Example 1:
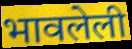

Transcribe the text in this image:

भावलेली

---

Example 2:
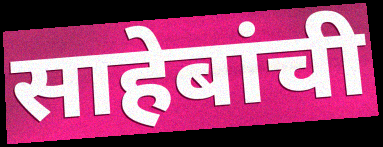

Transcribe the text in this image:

साहेबांची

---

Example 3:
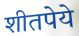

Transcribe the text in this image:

शीतपेये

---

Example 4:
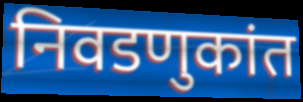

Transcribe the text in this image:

निवडणुकांत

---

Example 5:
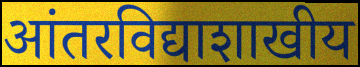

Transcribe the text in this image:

आंतरविद्याशाखीय